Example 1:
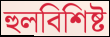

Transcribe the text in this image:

হুলবিশিষ্ট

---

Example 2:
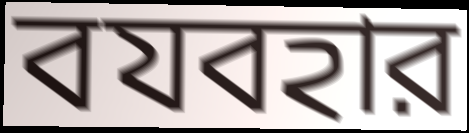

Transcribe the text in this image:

বযবহার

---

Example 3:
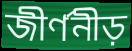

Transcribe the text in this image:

জীর্ণনীড়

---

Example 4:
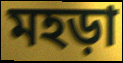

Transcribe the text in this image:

মহড়া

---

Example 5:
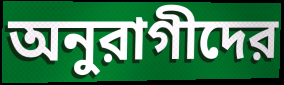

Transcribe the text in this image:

অনুরাগীদের